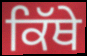
ਕਿੱਥੇ